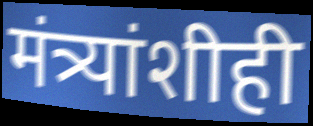
मंत्र्यांशीही